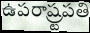
ఉపరాష్ర్టపతి